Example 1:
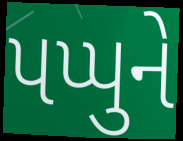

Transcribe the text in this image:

પપ્પુને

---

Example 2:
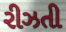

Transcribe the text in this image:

રીઝતી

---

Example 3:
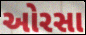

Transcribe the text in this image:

ઓરસા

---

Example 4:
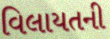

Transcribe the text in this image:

વિલાયતની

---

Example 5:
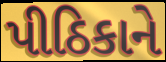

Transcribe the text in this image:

પીઠિકાને